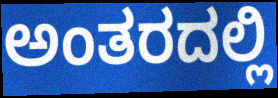
ಅಂತರದಲ್ಲಿ